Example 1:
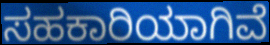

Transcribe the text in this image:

ಸಹಕಾರಿಯಾಗಿವೆ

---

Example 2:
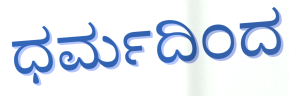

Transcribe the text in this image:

ಧರ್ಮದಿಂದ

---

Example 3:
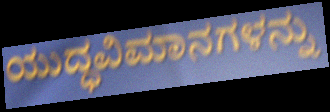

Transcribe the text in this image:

ಯುದ್ಧವಿಮಾನಗಳನ್ನು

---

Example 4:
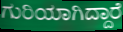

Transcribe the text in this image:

ಗುರಿಯಾಗಿದ್ದಾರೆ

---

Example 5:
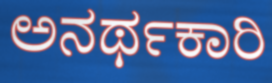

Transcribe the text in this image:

ಅನರ್ಥಕಾರಿ